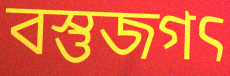
বস্তুজগৎ